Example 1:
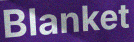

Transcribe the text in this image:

Blanket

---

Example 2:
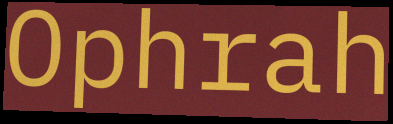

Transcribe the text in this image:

Ophrah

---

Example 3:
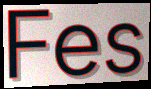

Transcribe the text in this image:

Fes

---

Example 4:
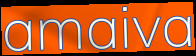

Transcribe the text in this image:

amaiva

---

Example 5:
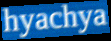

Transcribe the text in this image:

hyachya